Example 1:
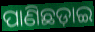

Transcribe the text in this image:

ପାଣିଛଡ଼ାଇ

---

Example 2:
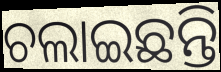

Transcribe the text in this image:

ଚଲାଇଛନ୍ତି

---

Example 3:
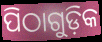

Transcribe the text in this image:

ପିଠାଗୁଡ଼ିକ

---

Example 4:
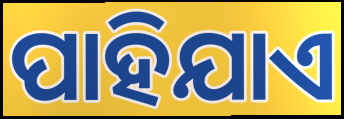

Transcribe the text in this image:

ପାହିଯାଏ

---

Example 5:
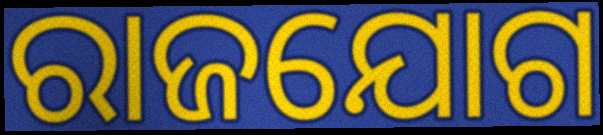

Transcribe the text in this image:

ରାଜଯୋଗ